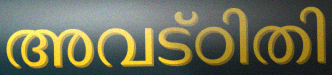
അവട്ഠിതി